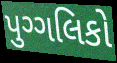
પુગ્ગલિકો